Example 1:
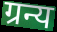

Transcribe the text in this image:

ग्रन्य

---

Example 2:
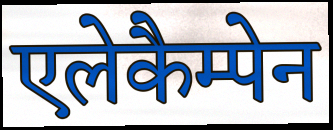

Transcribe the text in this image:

एलेकैम्पेन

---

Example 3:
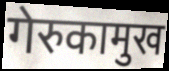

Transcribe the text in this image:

गेरुकामुख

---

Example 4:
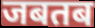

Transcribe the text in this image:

जबतब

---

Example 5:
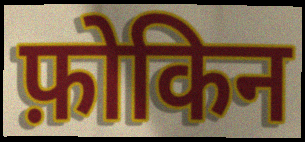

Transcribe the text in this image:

फ़ोकिन